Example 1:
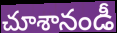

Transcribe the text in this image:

చూశానండీ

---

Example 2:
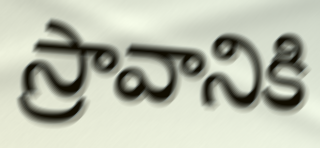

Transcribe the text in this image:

స్రావానికి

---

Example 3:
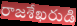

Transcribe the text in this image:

రాజశేఖరుడి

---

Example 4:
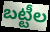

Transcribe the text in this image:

బట్టీల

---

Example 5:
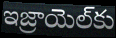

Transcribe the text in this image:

ఇజ్రాయెల్‌కు